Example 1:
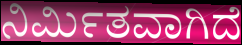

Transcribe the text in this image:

ನಿರ್ಮಿತವಾಗಿದೆ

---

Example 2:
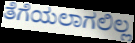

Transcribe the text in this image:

ತೆಗೆಯಲಾಗಲಿಲ್ಲ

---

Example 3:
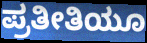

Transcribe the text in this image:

ಪ್ರತೀತಿಯೂ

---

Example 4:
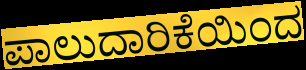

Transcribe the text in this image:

ಪಾಲುದಾರಿಕೆಯಿಂದ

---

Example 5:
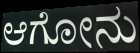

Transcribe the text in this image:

ಆಗೋನು